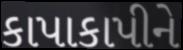
કાપાકાપીને